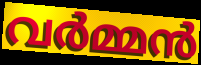
വർമ്മൻ